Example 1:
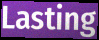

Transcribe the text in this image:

Lasting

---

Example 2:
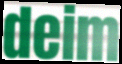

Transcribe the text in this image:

deim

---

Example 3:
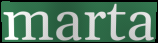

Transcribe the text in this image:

marta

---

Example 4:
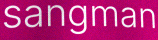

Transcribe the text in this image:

sangman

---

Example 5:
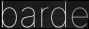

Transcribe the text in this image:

barde